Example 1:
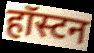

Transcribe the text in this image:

हॉस्टन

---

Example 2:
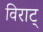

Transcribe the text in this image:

विराट्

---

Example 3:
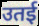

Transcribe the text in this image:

उतई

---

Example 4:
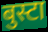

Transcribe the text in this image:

बुस्टा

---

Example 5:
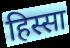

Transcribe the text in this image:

हिस्सा